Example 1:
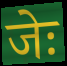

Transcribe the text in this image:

जेः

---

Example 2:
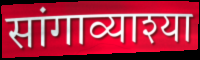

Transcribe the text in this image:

सांगाव्याश्या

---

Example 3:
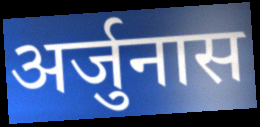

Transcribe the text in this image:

अर्जुनास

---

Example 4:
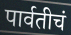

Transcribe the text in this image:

पार्वतीचं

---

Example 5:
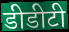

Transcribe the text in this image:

डीडीटी